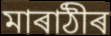
মাৰাঠীৰ